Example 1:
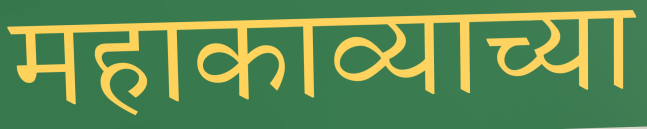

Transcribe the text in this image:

महाकाव्याच्या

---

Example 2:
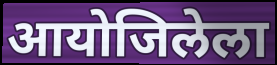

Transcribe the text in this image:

आयोजिलेला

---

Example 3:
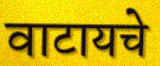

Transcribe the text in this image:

वाटायचे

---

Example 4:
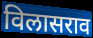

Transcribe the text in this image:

विलासराव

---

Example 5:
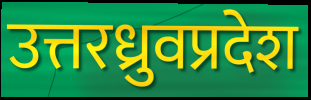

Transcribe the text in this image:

उत्तरध्रुवप्रदेश